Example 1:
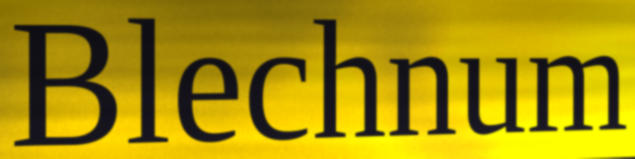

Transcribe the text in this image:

Blechnum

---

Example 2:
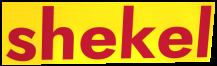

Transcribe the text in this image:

shekel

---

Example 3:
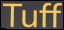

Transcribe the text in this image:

Tuff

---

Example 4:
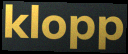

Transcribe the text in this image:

klopp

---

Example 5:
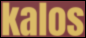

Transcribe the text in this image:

kalos